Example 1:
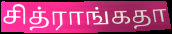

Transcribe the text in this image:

சித்ராங்கதா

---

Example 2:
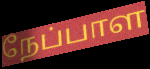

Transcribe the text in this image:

நேப்பாள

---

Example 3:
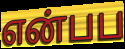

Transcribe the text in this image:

என்பப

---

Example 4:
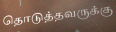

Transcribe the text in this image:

தொடுத்தவருக்கு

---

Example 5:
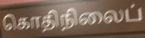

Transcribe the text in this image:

கொதிநிலைப்